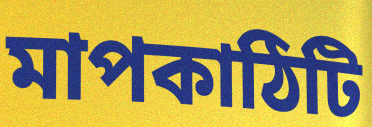
মাপকাঠিটি